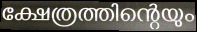
ക്ഷേത്രത്തിന്റെയും